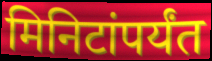
मिनिटांपर्यंत